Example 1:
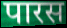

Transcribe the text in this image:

पारस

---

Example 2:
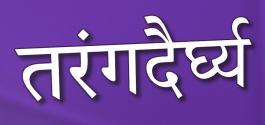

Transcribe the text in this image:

तरंगदैर्घ्य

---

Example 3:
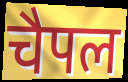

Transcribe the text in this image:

चैपल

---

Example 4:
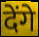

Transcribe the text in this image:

देंगे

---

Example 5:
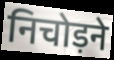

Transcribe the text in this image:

निचोड़ने